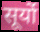
सूर्यो